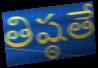
తిష్ఠతే